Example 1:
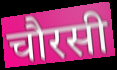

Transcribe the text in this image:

चौरसी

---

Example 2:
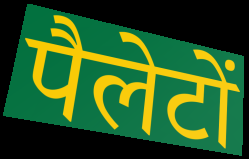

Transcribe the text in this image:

पैलेटों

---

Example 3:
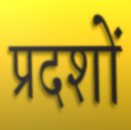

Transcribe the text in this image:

प्रदशों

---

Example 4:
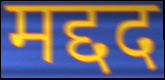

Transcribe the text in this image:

मद्दद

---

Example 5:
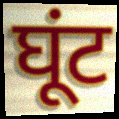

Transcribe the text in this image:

घूंट